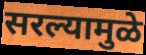
सरल्यामुळे